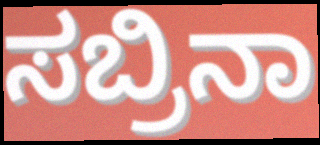
ಸಬ್ರಿನಾ